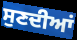
ਸੁਣਦੀਆਂ